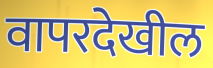
वापरदेखील